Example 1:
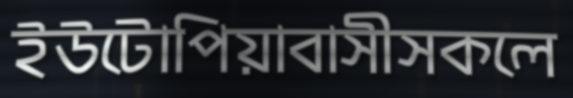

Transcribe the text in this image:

ইউটোপিয়াবাসীসকলে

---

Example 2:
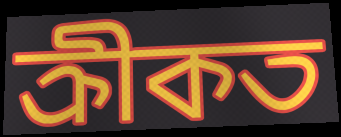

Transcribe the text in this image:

ক্ৰীকত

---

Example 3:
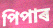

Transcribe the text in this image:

পিপাৰ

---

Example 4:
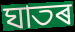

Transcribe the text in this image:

ঘাতৰ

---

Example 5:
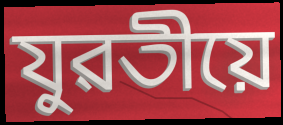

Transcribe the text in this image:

যুৱতীয়ে